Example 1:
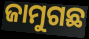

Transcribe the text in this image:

ଜାମୁଗଛ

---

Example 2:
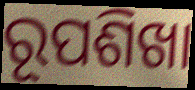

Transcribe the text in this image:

ରୂପଶିଖା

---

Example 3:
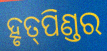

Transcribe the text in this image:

ହୃତ୍‍ପିଣ୍ଡର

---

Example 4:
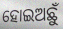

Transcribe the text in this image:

ହୋଇଅଛୁଁ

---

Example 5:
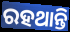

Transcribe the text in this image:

ରହଥାନ୍ତି